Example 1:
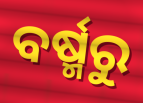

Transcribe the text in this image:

ବର୍ଷ୍ମରୁ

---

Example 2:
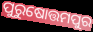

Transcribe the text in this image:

ପୁରୁଷୋତ୍ତମପୁର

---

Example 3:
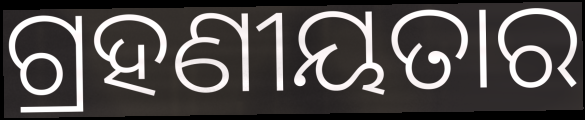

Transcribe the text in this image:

ଗ୍ରହଣୀୟତାର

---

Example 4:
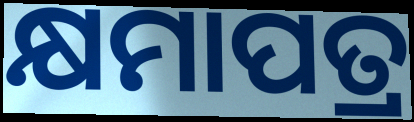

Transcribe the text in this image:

କ୍ଷମାପତ୍ର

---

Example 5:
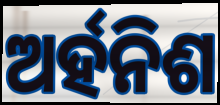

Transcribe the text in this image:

ଅର୍ହନିଶ